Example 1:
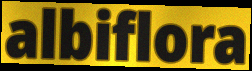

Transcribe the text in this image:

albiflora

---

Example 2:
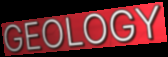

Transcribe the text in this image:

GEOLOGY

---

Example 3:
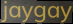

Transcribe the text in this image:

jaygay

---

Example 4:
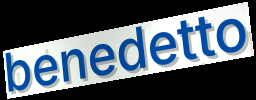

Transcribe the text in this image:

benedetto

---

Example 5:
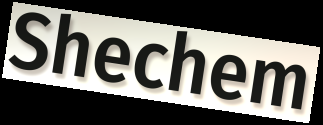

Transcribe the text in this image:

Shechem